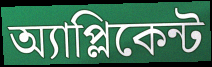
অ্যাপ্লিকেন্ট